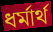
ধর্মার্থ